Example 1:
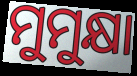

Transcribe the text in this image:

ମୁମୁକ୍ଷା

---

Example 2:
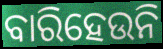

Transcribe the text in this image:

ବାରିହେଉନି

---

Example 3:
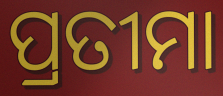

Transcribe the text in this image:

ପ୍ରତୀମା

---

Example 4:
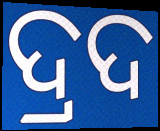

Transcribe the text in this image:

ଦ୍ରଦ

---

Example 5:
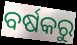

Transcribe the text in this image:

ବର୍ଷକରୁ